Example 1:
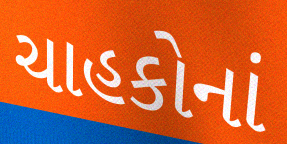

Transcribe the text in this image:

ચાહકોનાં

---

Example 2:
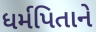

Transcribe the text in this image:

ધર્મપિતાને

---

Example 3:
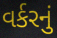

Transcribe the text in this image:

વર્કરનું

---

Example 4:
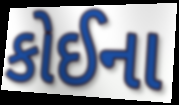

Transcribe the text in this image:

કોઈના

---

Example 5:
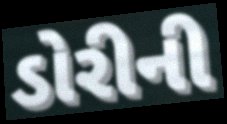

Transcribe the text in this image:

ડોરીની